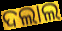
ଦଲାଲ